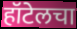
हॉटेलचा